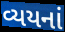
વ્યયનાં